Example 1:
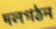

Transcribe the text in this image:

দলগঠন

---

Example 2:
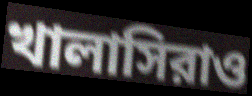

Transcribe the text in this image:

খালাসিরাও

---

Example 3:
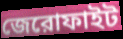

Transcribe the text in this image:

জেরোফাইট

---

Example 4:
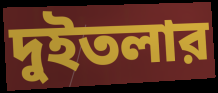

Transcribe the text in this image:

দুইতলার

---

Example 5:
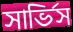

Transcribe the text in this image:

সার্ভিস